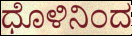
ಧೊಳಿನಿಂದ